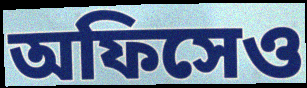
অফিসেও